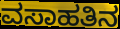
ವಸಾಹತಿನ